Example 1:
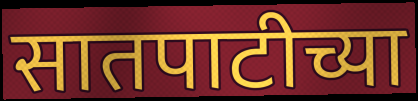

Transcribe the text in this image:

सातपाटीच्या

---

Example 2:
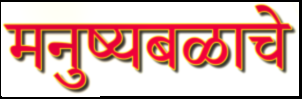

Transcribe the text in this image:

मनुष्यबळाचे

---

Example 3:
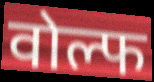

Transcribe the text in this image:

वोल्फ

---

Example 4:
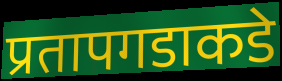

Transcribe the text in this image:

प्रतापगडाकडे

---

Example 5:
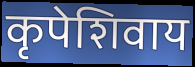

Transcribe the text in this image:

कृपेशिवाय